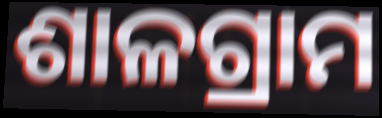
ଶାଳଗ୍ରାମ